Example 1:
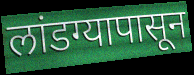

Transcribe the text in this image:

लांडग्यापासून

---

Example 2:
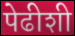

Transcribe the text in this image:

पेढीशी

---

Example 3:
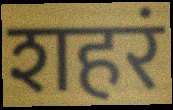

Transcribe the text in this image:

शहरं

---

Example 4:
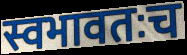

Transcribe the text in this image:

स्वभावतःच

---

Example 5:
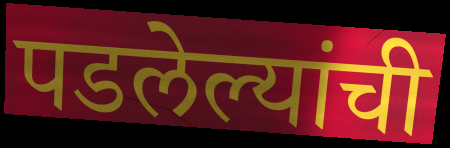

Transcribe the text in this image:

पडलेल्यांची